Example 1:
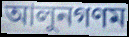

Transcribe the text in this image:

আলুনগণম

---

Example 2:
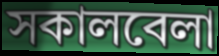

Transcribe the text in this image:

সকালবেলা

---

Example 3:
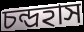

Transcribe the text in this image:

চন্দ্রহাস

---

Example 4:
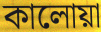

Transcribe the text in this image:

কালোয়া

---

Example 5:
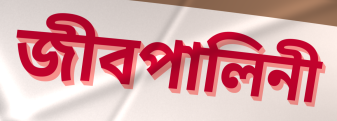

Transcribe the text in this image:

জীবপালিনী